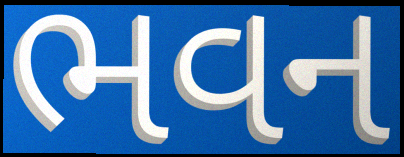
ભવન